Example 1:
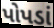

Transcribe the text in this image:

પોપડાં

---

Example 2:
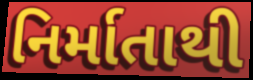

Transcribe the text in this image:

નિર્માતાથી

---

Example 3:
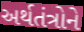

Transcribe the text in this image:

અર્થતંત્રોને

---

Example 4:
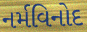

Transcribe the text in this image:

નર્મવિનોદ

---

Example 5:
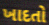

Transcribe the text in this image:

ખાદતો